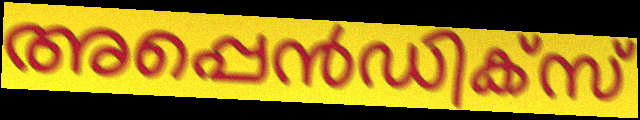
അപ്പെൻഡിക്സ്